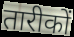
तारीकों